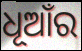
ଧୂଆଁର